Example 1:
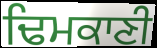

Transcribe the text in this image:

ਢਿਮਕਾਣੀ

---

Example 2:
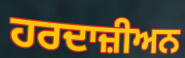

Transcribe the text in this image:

ਹਰਦਾਜ਼ੀਅਨ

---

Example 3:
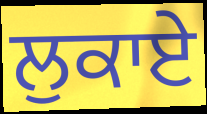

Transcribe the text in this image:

ਲੁਕਾਏ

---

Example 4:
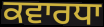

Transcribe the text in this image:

ਕਵਾਰਧਾ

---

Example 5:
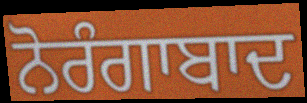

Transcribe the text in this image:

ਨੋਰੰਗਾਬਾਦ